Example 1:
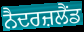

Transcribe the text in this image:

ਨੈਦਰਜ਼ਲੈਂਡ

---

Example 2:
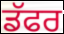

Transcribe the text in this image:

ਡੱਫਰ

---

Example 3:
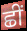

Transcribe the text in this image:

ਛੀਂ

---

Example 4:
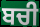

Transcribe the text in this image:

ਬਚੀ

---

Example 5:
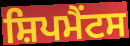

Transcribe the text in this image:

ਸ਼ਿਪਮੈਂਟਸ